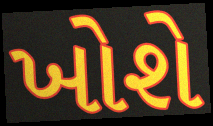
ખોશે